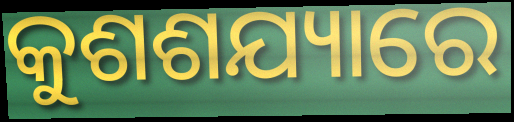
କୁଶଶଯ୍ୟାରେ